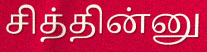
சித்தின்னு